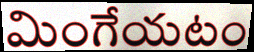
మింగేయటం